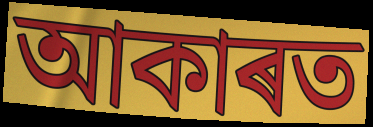
আকাৰত